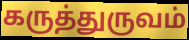
கருத்துருவம்